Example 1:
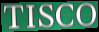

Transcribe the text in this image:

TISCO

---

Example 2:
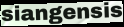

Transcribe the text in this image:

siangensis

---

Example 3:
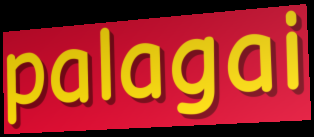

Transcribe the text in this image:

palagai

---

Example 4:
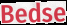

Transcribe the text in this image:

Bedse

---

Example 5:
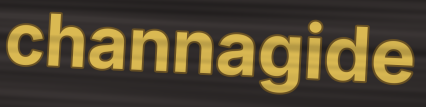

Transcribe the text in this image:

channagide